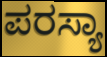
ಪರಸ್ಯಾ